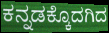
ಕನ್ನಡಕ್ಕೊದಗಿದ